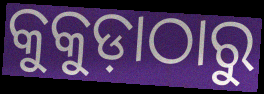
କୁକୁଡ଼ାଠାରୁ